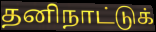
தனிநாட்டுக்